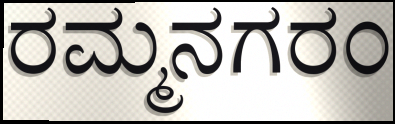
ರಮ್ಮನಗರಂ